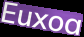
Euxoa